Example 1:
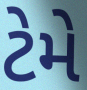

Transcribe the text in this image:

ટેમે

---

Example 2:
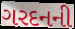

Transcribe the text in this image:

ગરદનની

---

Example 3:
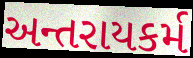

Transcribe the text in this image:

અન્તરાયકર્મ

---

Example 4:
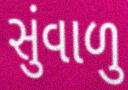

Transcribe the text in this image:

સુંવાળુ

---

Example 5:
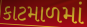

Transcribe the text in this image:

કાટમાળમાં